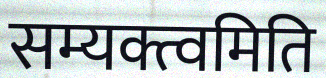
सम्यक्त्वमिति